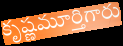
కృష్ణమూర్తిగారు